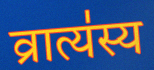
व्रात्य॑स्य